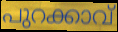
പുറക്കാവ്